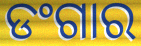
ଡଂଗାର